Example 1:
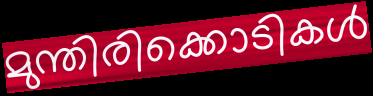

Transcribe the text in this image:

മുന്തിരിക്കൊടികൾ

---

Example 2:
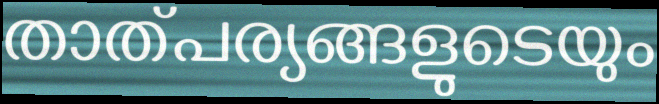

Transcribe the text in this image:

താത്പര്യങ്ങളുടെയും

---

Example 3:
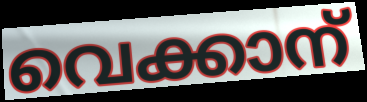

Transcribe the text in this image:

വെക്കാന്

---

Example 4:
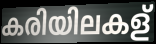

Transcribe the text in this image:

കരിയിലകള്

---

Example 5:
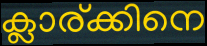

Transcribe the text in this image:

ക്ലാര്ക്കിനെ